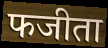
फजीता